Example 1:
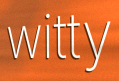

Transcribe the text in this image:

witty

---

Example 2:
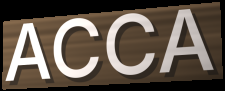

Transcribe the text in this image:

ACCA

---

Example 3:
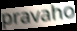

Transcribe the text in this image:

pravaho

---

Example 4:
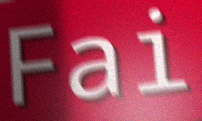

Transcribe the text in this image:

Fai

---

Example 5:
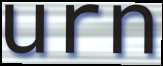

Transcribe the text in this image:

urn